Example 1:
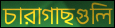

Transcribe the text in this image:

চারাগাছগুলি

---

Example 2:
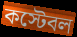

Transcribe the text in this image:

কস্টেবল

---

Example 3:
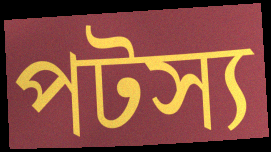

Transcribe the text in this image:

পটস্য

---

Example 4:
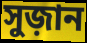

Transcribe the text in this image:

সুজ়ান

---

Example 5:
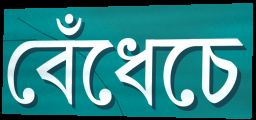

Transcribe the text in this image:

বেঁধেচে